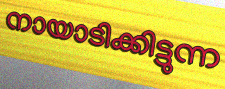
നായാടിക്കിട്ടുന്ന